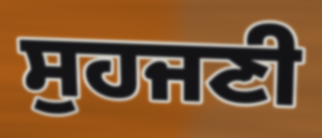
ਸੁਹਜਣੀ